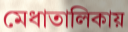
মেধাতালিকায়